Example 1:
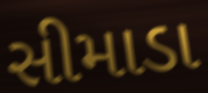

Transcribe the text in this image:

સીમાડા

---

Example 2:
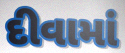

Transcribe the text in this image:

દીવામાં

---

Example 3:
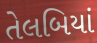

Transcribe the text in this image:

તેલબિયાં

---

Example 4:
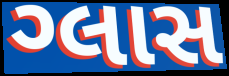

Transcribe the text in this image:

ગ્લાસ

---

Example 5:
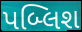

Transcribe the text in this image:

પબ્લિશ